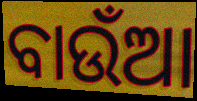
ବାଉଁଆ